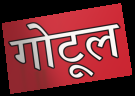
गोटूल